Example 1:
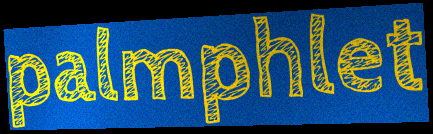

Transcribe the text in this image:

palmphlet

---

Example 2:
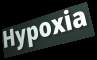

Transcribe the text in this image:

Hypoxia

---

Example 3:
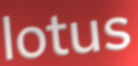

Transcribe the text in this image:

lotus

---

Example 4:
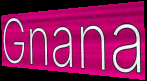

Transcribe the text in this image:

Gnana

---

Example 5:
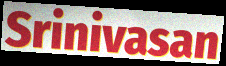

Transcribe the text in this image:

Srinivasan